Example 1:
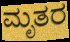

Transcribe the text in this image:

ಮೃತರ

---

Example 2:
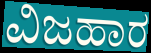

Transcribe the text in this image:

ವಿಜಹಾರ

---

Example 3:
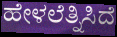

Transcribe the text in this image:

ಹೇಳಲೆತ್ನಿಸಿದೆ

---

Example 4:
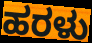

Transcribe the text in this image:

ಹರಳು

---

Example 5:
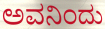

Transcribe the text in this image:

ಅವನಿಂದು